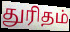
துரிதம்